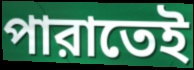
পারাতেই